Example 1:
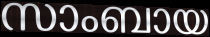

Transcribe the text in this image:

സാംബായ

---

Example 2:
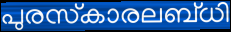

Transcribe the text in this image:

പുരസ്‌കാരലബ്ധി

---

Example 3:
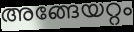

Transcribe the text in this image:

അങ്ങേയറ്റം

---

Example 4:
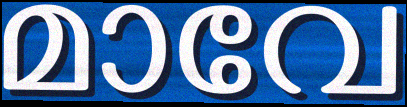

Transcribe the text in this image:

മാവേ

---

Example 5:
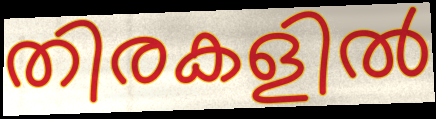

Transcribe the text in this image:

തിരകളിൽ